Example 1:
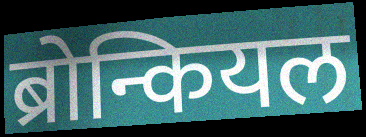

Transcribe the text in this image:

ब्रोन्कियल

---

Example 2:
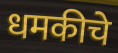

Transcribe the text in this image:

धमकीचे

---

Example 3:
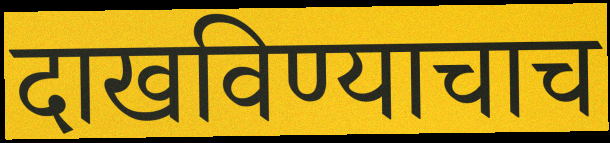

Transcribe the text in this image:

दाखविण्याचाच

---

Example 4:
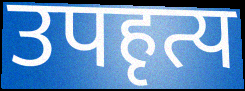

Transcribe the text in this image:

उपहृत्य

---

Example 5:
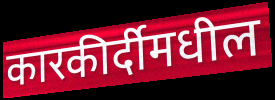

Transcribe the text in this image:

कारकीर्दीमधील